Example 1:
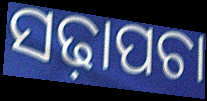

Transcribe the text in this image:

ସଢ଼ାପଚା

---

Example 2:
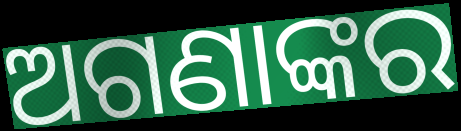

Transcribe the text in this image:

ଅଗଣାଙ୍କର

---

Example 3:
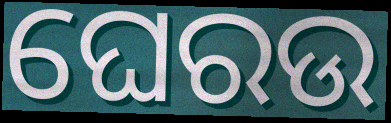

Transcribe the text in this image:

ଘେରଉ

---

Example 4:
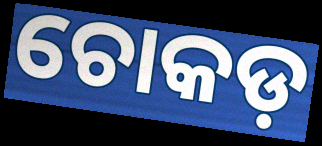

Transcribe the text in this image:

ଚୋକଡ଼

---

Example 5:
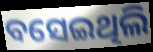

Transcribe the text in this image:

ବସେଇଥିଲି